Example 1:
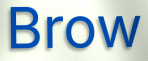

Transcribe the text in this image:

Brow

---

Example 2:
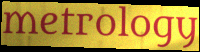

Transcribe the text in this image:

metrology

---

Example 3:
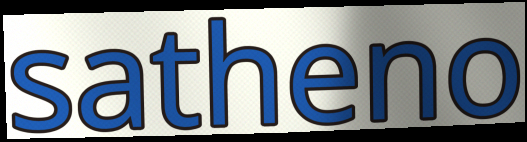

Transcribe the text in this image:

satheno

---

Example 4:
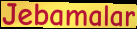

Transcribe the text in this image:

Jebamalar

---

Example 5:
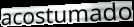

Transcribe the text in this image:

acostumado